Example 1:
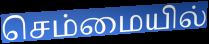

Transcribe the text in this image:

செம்மையில்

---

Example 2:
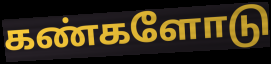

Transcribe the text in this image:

கண்களோடு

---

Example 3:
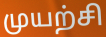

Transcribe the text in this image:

முயற்சி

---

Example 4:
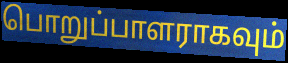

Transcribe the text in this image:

பொறுப்பாளராகவும்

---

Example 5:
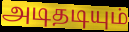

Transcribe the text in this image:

அடிதடியும்